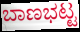
ಬಾಣಭಟ್ಟ